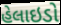
હેલાઇડો